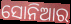
ସୋନିଆର